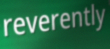
reverently